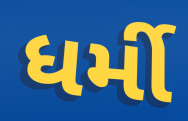
ધર્મી